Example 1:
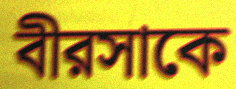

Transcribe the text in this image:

বীরসাকে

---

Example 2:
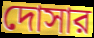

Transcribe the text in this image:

দোসার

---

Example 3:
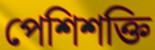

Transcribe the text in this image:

পেশিশক্তি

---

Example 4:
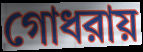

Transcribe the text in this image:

গোধরায়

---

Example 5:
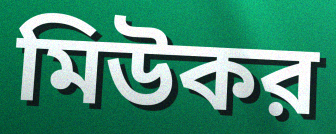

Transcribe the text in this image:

মিউকর